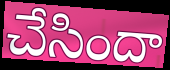
చేసిందా